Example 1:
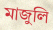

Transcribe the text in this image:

মাজুলি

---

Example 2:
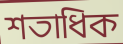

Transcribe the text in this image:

শতাধিক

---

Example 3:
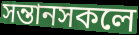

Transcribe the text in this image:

সন্তানসকলে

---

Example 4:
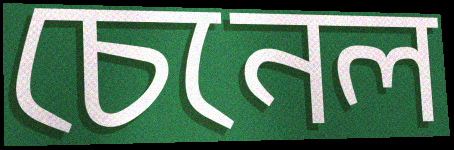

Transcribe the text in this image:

চেনেল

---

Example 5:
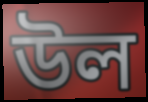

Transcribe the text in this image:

উল